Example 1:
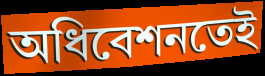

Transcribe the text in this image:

অধিবেশনতেই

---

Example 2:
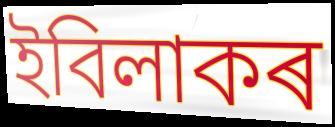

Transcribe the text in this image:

ইবিলাকৰ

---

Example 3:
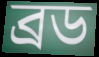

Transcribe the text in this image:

ব্ৰড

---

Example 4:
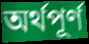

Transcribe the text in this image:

অৰ্থপূৰ্ণ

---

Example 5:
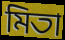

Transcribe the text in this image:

মিতা